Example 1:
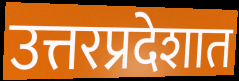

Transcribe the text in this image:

उत्तरप्रदेशात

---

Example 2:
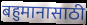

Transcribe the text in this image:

बहुमानासाठी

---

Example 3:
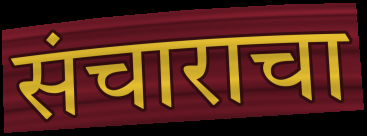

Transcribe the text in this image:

संचाराचा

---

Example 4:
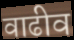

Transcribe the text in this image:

वाढीव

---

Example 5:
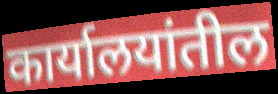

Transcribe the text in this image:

कार्यालयांतील